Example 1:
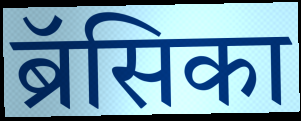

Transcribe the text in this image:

ब्रॅसिका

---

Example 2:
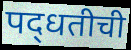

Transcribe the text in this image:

पद्धतीची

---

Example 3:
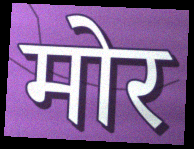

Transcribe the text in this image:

मोर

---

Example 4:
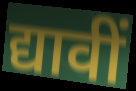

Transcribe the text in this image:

द्यावीं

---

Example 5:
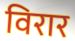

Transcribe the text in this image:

विरार